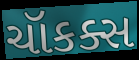
ચૉકક્સ